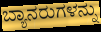
ಬ್ಯಾನರುಗಳನ್ನು